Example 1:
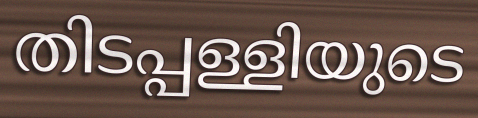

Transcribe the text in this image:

തിടപ്പള്ളിയുടെ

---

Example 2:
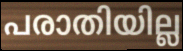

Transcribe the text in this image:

പരാതിയില്ല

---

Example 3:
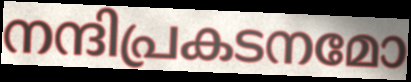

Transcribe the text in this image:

നന്ദിപ്രകടനമോ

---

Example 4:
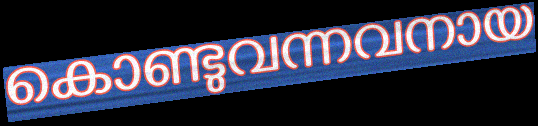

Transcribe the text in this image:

കൊണ്ടുവന്നവനായ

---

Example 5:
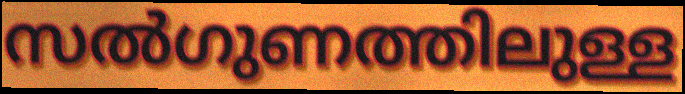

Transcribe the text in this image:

സൽഗുണത്തിലുള്ള